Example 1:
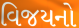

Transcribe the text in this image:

વિજયનો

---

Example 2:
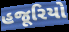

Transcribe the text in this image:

હજૂરિયો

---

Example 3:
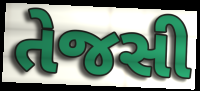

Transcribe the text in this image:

તેજસી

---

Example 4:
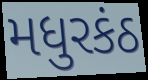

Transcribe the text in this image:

મધુરકંઠ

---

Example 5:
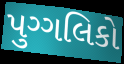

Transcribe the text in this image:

પુગ્ગલિકો